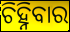
ଚିହ୍ନିବାର